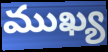
ముఖ్య